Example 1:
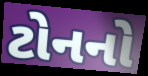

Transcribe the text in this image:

ટોનનો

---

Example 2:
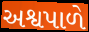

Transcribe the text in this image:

અશ્વપાળે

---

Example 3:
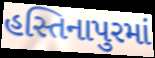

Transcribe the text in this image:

હસ્તિનાપુરમાં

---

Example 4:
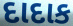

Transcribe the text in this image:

દાદાક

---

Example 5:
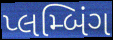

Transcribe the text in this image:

પ્લમ્બિંગ